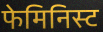
फेमिनिस्ट